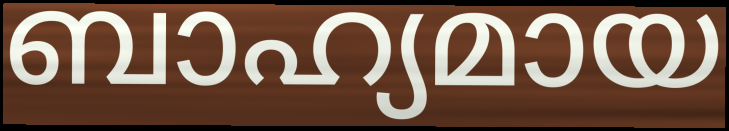
ബാഹ്യമായ